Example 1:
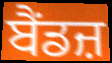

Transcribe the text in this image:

ਬੈਂਡਜ਼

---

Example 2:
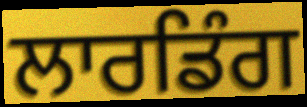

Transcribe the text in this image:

ਲਾਰਡਿੰਗ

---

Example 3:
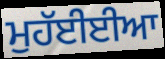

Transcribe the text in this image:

ਮੁਹੱਈਈਆ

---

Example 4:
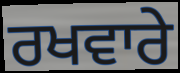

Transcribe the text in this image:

ਰਖਵਾਰੇ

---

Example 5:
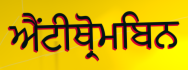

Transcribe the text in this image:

ਐਂਟੀਥ੍ਰੋਮਬਿਨ